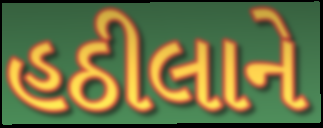
હઠીલાને